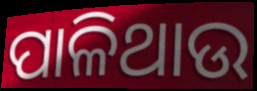
ପାଳିଥାଉ